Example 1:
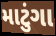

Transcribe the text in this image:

માટુંગા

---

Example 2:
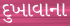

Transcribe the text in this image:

દુખાવાના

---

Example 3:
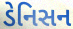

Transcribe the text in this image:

ડેનિસન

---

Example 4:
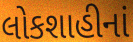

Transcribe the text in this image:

લોકશાહીનાં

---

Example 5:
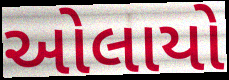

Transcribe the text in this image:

ઓલાયો